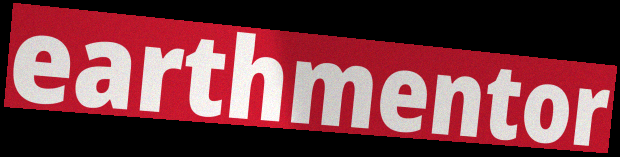
earthmentor